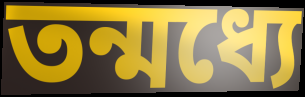
তন্মধ্যে